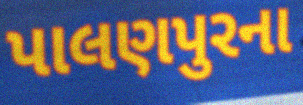
પાલણપુરના